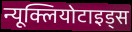
न्यूक्लियोटाइड्स